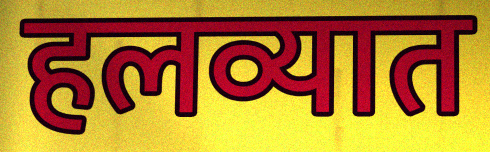
हलव्यात